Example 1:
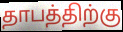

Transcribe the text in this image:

தாபத்திற்கு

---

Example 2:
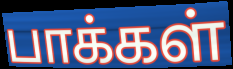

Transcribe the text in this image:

பாக்கள்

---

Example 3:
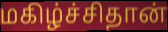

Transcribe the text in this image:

மகிழ்ச்சிதான்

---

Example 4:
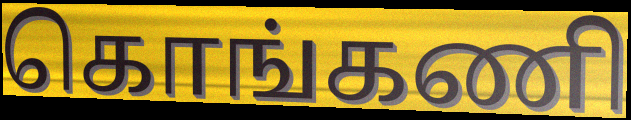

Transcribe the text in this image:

கொங்கணி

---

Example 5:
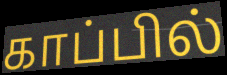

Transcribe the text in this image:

காப்பில்